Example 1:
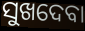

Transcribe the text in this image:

ସୁଖଦେବା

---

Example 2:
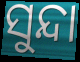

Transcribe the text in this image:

ସୁନ୍ଦା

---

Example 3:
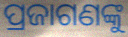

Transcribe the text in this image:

ପ୍ରଜାଗଣଙ୍କୁ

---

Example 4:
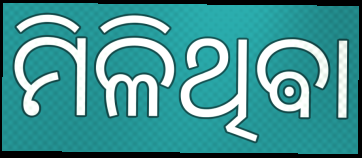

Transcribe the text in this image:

ମିଳିଥିଵା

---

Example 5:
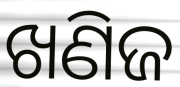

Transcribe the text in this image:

ଖଣିଜ